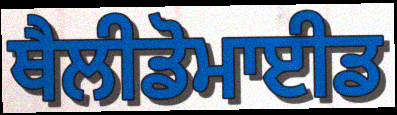
ਥੈਲੀਡੋਮਾਈਡ